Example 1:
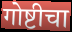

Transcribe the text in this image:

गोष्टीचा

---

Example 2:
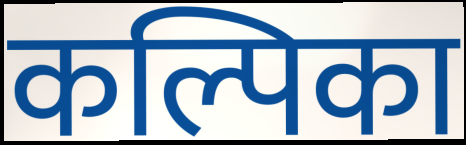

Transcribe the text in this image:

कल्पिका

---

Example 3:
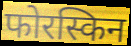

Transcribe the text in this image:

फोरस्किन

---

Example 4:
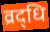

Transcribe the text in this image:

व्रद्धि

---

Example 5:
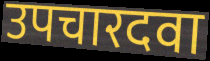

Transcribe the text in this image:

उपचारदवा